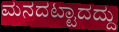
ಮನದಟ್ಟಾದದ್ದು